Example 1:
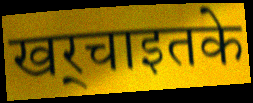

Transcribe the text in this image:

खर्चाइतके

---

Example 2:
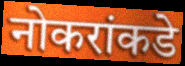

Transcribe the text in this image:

नोकरांकडे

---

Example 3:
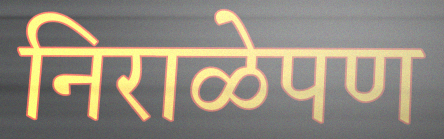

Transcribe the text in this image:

निराळेपण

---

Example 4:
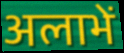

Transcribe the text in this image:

अलाभें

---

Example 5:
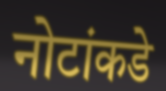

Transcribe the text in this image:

नोटांकडे